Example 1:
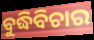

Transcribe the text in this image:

ବୁଦ୍ଧିବିଚାର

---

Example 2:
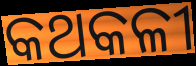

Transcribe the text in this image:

କଥକଳୀ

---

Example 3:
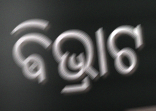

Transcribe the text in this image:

ଵିଭ୍ରାଟ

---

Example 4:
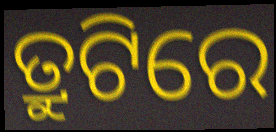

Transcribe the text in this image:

ତ୍ରୁଟିରେ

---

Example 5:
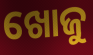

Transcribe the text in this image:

ଖୋଜୁ